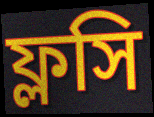
ফ্লসি